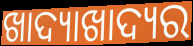
ଖାଦ୍ୟାଖାଦ୍ୟର